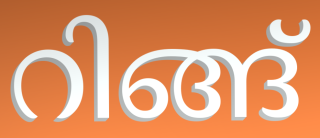
റിങ്ങ്